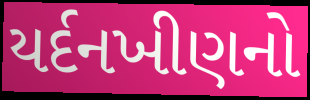
યર્દનખીણનો